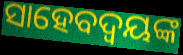
ସାହେବଦ୍ୱୟଙ୍କ